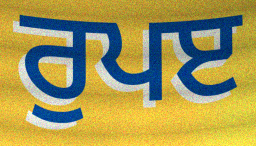
ਰੁਪੲ